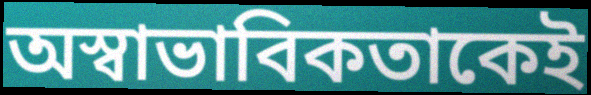
অস্বাভাবিকতাকেই